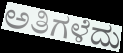
ಅತಿಗಳೆದು